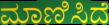
ಮಾಣಿಸಿದೆ